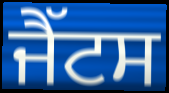
ਜੈੱਟਸ